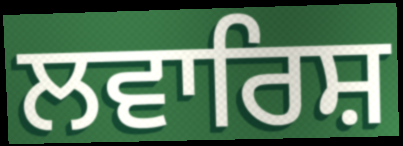
ਲਵਾਰਿਸ਼